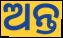
ଅନ୍ତ